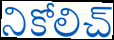
నికోలిచ్